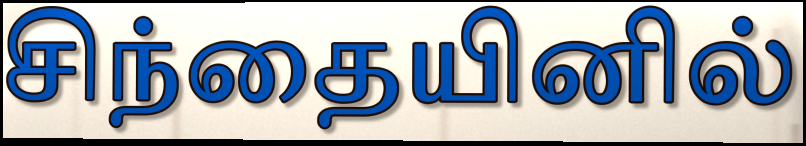
சிந்தையினில்